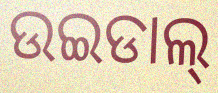
ଉଇଡାଲ୍